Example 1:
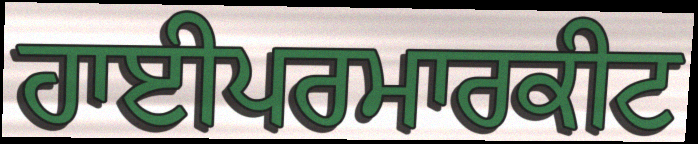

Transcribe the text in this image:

ਹਾਈਪਰਮਾਰਕੀਟ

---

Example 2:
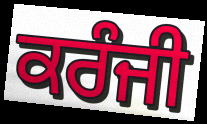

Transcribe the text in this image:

ਕਰੰਜੀ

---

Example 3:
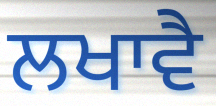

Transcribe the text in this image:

ਲਖਾਵੈ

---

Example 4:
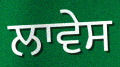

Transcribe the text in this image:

ਲਾਵੇਸ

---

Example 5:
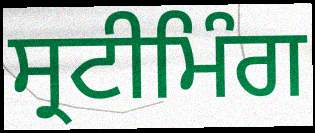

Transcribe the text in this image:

ਸ੍ਰਟੀਮਿੰਗ